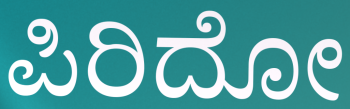
ಪಿರಿದೋ